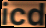
icd